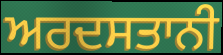
ਅਰਦਸਤਾਨੀ